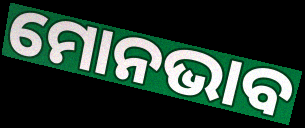
ମୋନଭାବ